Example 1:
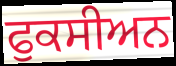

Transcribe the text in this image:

ਫੁਕਸੀਅਨ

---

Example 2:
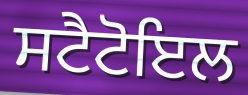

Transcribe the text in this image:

ਸਟੈਟੋਇਲ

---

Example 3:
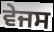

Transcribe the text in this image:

ਵੇਜਸ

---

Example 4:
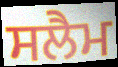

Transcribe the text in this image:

ਸਲੈਮ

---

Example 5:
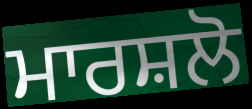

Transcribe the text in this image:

ਮਾਰਸ਼ਲੋ